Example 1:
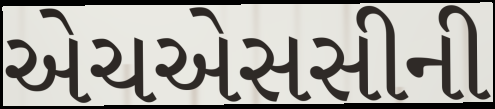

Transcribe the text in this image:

એચએસસીની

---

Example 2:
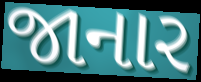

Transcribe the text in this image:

જાનાર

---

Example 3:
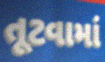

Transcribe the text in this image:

તૂટવામાં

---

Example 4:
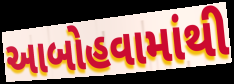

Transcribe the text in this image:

આબોહવામાંથી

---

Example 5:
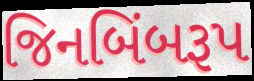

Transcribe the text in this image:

જિનબિંબરૂપ